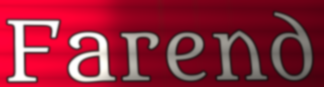
Farend